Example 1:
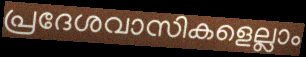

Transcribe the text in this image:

പ്രദേശവാസികളെല്ലാം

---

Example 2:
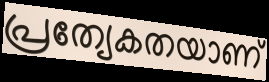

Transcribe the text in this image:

പ്രത്യേകതയാണ്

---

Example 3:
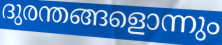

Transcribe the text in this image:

ദുരന്തങ്ങളൊന്നും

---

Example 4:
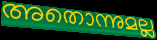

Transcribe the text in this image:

അതൊന്നുമല്ല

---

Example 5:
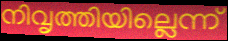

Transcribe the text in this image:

നിവൃത്തിയില്ലെന്ന്